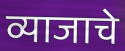
व्याजाचे